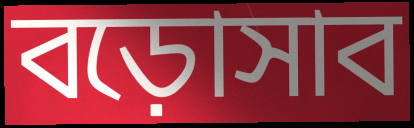
বড়োসাব